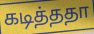
கடித்ததா